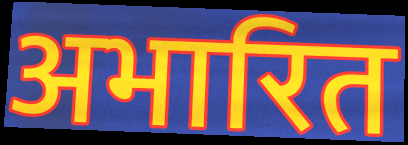
अभारित